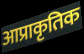
आप्राकृतिक